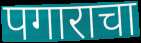
पगाराचा